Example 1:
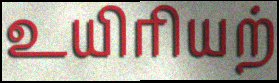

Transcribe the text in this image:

உயிரியற்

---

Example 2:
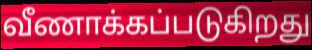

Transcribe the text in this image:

வீணாக்கப்படுகிறது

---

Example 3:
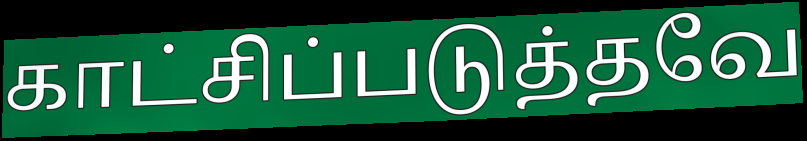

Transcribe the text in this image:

காட்சிப்படுத்தவே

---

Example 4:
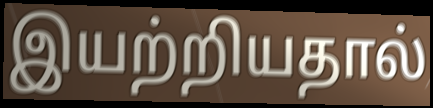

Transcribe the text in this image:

இயற்றியதால்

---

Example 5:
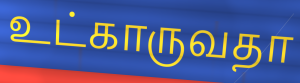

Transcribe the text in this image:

உட்காருவதா